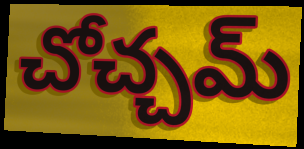
చోచ్చమ్